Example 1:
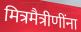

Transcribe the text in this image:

मित्रमैत्रीणींना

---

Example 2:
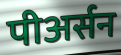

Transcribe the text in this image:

पीअर्सन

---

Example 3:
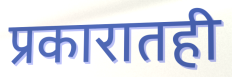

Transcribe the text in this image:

प्रकारातही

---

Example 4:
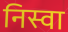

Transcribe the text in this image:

निस्वा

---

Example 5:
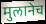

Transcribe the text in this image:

मुलानेच